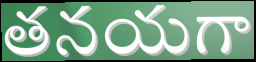
తనయగా